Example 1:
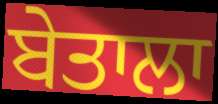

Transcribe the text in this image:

ਬੇਤਾਲਾ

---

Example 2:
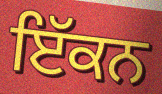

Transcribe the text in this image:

ਇੱਕਨ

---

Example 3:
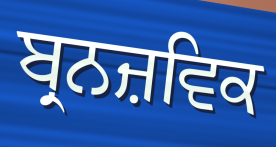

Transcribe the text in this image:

ਬ੍ਰਨਜ਼ਵਿਕ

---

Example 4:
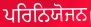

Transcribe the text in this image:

ਪਰਿਨਿਯੋਜਨ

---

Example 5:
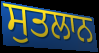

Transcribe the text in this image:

ਸੁਤਲਾਨ